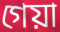
গেয়া